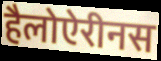
हैलोऐरीनस